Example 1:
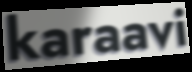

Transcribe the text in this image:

karaavi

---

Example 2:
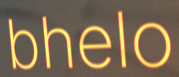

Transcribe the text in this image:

bhelo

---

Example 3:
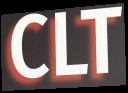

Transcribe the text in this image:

CLT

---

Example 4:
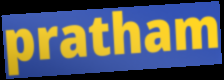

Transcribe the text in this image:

pratham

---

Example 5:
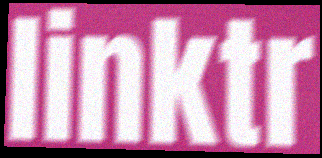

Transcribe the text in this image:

linktr